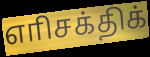
எரிசக்திக்